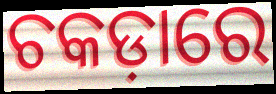
ଚକଡ଼ାରେ